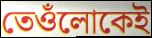
তেওঁলোকেই